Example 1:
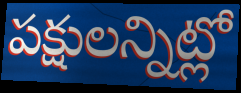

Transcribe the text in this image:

పక్షులన్నిట్లో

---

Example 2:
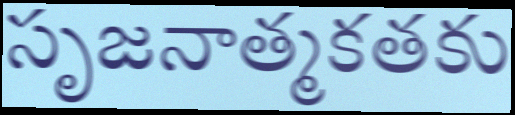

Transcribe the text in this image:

సృజనాత్మకతకు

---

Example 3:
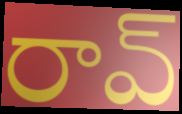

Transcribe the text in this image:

రావ్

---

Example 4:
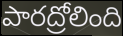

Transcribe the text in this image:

పారద్రోలింది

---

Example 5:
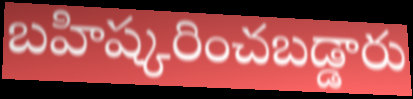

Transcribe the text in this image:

బహిష్కరించబడ్డారు